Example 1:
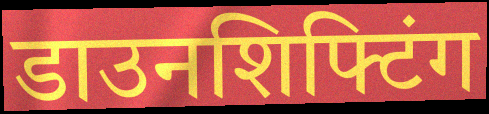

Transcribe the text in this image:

डाउनशिफ्टिंग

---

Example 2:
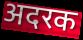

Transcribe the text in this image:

अदरक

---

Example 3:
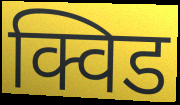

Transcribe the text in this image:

क्विड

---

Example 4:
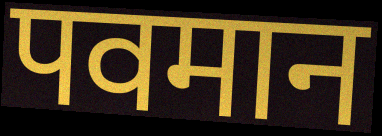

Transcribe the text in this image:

पवमान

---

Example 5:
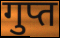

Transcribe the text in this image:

गुप्त